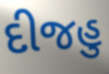
દીજહુ